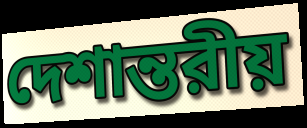
দেশান্তরীয়